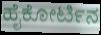
ಹೈಕೋರ್ಟಿನ